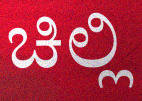
ಚಿಲ್ಲಿ